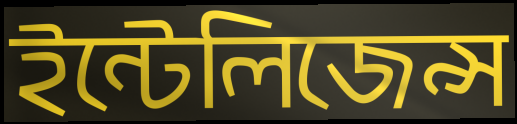
ইন্টেলিজেন্স